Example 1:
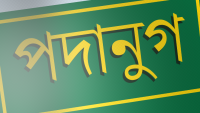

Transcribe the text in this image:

পদানুগ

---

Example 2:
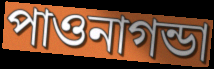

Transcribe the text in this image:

পাওনাগন্ডা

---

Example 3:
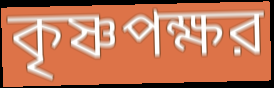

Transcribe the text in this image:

কৃষ্ণপক্ষর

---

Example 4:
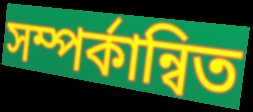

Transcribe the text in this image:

সম্পর্কান্বিত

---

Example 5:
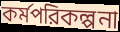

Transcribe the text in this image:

কর্মপরিকল্পনা